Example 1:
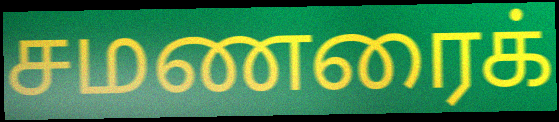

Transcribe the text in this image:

சமணரைக்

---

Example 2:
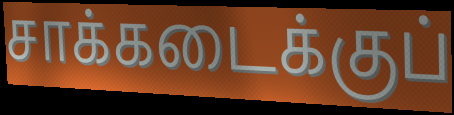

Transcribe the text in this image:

சாக்கடைக்குப்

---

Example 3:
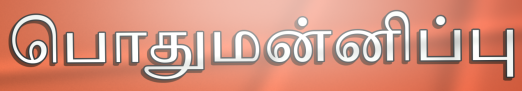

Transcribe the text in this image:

பொதுமன்னிப்பு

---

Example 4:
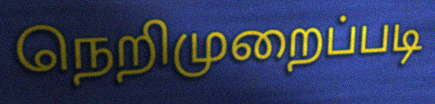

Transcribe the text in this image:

நெறிமுறைப்படி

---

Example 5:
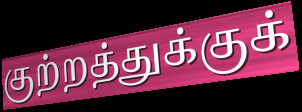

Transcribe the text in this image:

குற்றத்துக்குக்